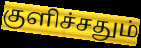
குளிச்சதும்